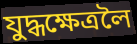
যুদ্ধক্ষেত্ৰলৈ